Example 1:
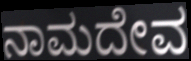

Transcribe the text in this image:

ನಾಮದೇವ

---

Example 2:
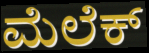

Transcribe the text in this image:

ಮೆಲೆಕ್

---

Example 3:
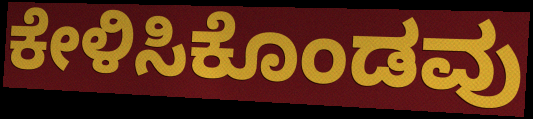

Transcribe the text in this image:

ಕೇಳಿಸಿಕೊಂಡವು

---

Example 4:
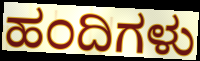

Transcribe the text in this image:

ಹಂದಿಗಳು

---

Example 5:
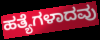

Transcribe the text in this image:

ಹತ್ಯೆಗಳಾದವು